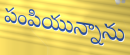
పంపియున్నాను